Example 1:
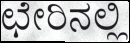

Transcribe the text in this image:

ಛೇರಿನಲ್ಲಿ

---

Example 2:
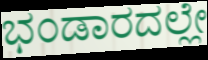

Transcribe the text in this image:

ಭಂಡಾರದಲ್ಲೇ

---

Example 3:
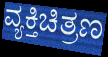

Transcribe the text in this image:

ವ್ಯಕ್ತಿಚಿತ್ರಣ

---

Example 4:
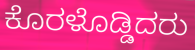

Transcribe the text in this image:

ಕೊರಳೊಡ್ಡಿದರು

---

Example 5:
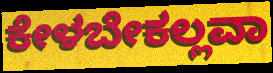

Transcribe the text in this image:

ಕೇಳಬೇಕಲ್ಲವಾ